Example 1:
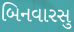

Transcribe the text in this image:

બિનવારસુ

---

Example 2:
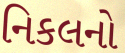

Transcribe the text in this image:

નિકલનો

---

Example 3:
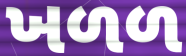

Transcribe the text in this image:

ખળળ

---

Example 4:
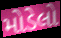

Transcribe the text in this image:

મોડેલો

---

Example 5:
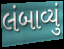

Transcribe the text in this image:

લંબાવ્યું